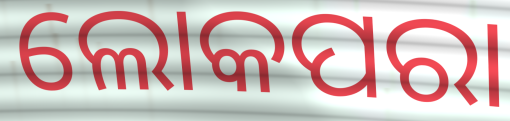
ଲୋକପରା